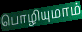
பொழியுமாம்